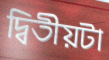
দ্বিতীয়টা